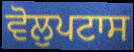
ਵੋਲੁਪਟਾਸ